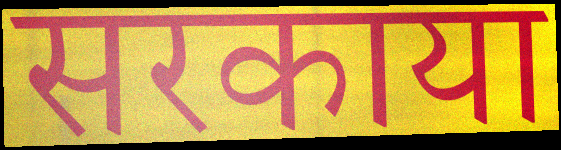
सरकाया